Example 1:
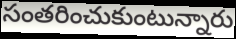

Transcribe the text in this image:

సంతరించుకుంటున్నారు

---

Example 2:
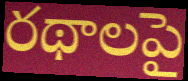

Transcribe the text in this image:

రథాలపై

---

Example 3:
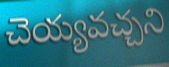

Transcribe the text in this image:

చెయ్యవచ్చని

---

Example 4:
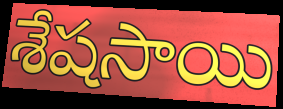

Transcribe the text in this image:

శేషసాయి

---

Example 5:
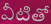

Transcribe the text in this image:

వీటితో